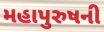
મહાપુરુષની